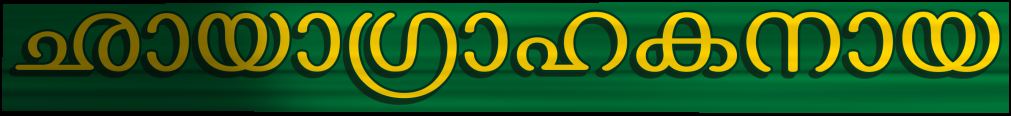
ഛായാഗ്രാഹകനായ